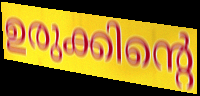
ഉരുക്കിന്റെ